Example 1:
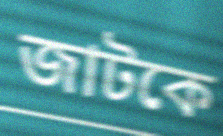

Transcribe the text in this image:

জাটকে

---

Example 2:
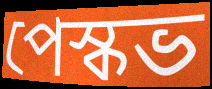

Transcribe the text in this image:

পেস্কভ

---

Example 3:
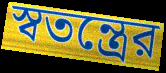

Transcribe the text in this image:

স্বতন্ত্রের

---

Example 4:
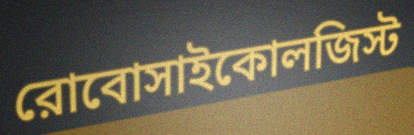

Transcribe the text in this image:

রোবোসাইকোলজিস্ট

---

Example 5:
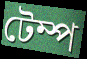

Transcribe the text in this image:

টেম্প